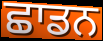
ਛਾਡਨ